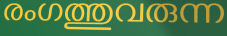
രംഗത്തുവരുന്ന